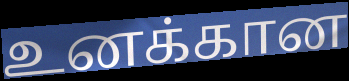
உனக்கான